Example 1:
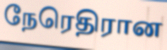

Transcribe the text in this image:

நேரெதிரான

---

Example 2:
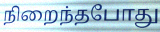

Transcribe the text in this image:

நிறைந்தபோது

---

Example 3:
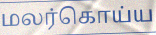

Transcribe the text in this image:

மலர்கொய்ய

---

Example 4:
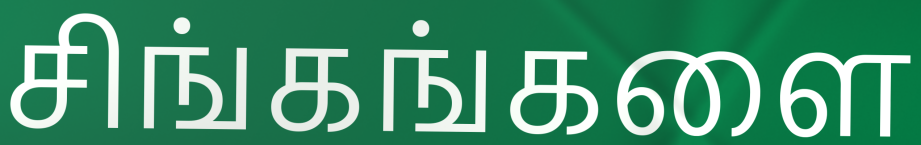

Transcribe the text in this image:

சிங்கங்களை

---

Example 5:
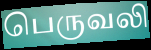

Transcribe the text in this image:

பெருவலி